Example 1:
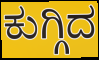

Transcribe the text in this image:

ಕುಗ್ಗಿದ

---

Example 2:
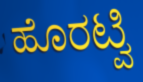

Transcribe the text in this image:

ಹೊರಟ್ವಿ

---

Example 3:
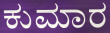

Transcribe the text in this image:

ಕುಮಾರ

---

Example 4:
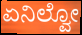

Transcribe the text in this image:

ಏನಿಲ್ವೋ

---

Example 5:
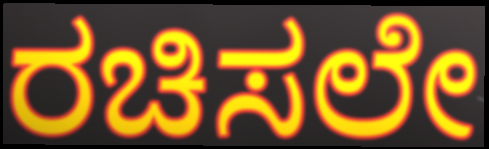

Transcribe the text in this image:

ರಚಿಸಲೇ